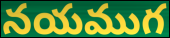
నయముగ